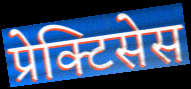
प्रेक्टिसेस